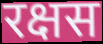
रक्षस